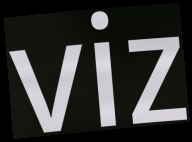
viz